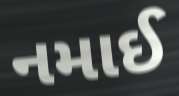
નમાઈ